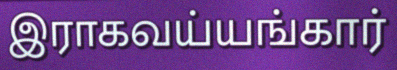
இராகவய்யங்கார்